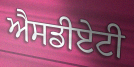
ਐਸਡੀਏਟੀ